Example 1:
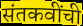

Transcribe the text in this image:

संतकवींची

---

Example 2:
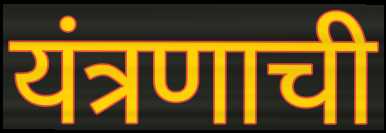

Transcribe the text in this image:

यंत्रणाची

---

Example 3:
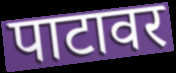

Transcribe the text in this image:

पाटावर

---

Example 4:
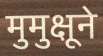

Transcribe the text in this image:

मुमुक्षूने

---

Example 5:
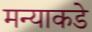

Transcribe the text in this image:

मन्याकडे